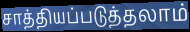
சாத்தியப்படுத்தலாம்